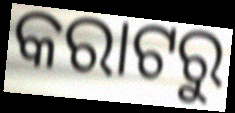
କରାଟରୁ